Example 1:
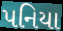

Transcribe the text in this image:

પનિયા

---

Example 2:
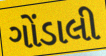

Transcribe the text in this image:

ગોંડાલી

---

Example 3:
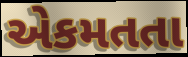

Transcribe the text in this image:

એકમતતા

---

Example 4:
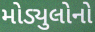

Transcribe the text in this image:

મોડ્યુલોનો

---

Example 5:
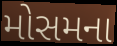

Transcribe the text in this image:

મોસમના